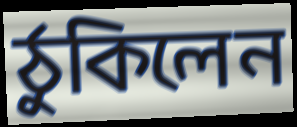
ঠুকিলেন